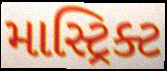
માસ્ટ્રિક્ટ